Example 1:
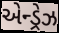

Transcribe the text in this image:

એન્ડ્રેઝ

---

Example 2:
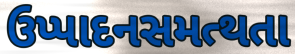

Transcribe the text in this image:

ઉપ્પાદનસમત્થતા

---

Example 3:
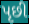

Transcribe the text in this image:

પૃછી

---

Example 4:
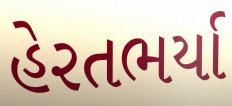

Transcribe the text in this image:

હેરતભર્યા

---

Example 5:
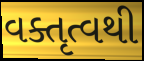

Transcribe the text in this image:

વક્તૃત્વથી